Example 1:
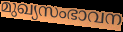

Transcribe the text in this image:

മുഖ്യസംഭാവന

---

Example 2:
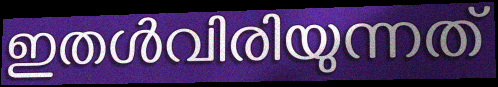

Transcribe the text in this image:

ഇതൾവിരിയുന്നത്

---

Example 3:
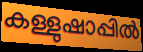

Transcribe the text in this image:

കള്ളുഷാപ്പിൽ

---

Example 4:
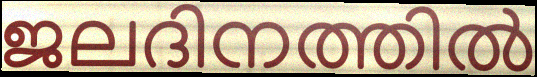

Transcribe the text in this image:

ജലദിനത്തിൽ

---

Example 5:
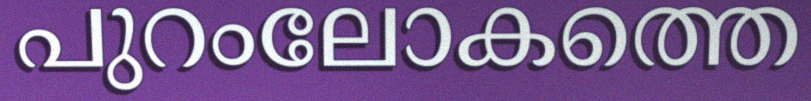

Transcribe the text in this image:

പുറംലോകത്തെ